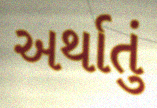
અર્થાતું